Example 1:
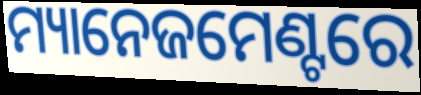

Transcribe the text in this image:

ମ୍ୟାନେଜମେଣ୍ଟରେ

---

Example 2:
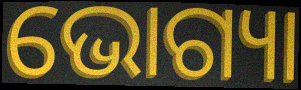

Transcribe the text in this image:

ଭୋଗ୍ୟା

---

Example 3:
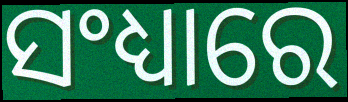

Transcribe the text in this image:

ସଂଧ୍ଯାରେ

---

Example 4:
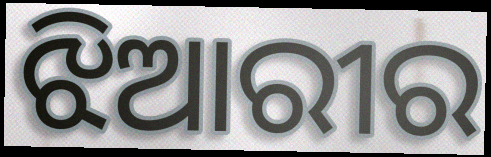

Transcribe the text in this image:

ଝିଆରୀର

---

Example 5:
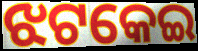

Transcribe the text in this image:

ଝଟକେଇ